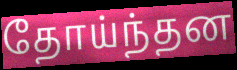
தோய்ந்தன